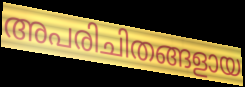
അപരിചിതങ്ങളായ